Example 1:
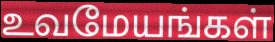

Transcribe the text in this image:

உவமேயங்கள்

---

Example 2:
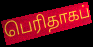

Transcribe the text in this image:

பெரிதாகப்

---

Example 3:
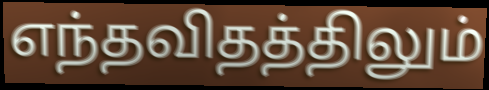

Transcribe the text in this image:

எந்தவிதத்திலும்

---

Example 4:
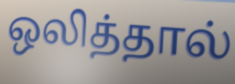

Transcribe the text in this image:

ஒலித்தால்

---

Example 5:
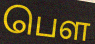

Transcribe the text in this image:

பெள